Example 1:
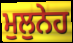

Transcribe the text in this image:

ਮੁਲੁਨੇਹ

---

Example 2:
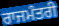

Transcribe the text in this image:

ਰਾਜਮੰਤਰੀ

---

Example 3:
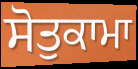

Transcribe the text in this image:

ਸੋਤੁਕਾਮਾ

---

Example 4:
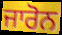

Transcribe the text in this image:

ਜਾਰੋਨ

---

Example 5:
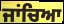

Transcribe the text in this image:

ਜਾਂਚਿਆ